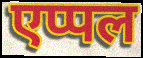
एप्पल